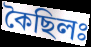
কৈছিলঃ